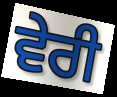
ਵੇਰੀ